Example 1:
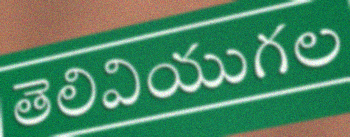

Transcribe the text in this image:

తెలివియుగల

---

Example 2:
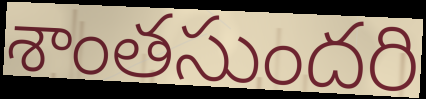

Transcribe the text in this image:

శాంతసుందరి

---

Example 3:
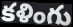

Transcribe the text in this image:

కళింగు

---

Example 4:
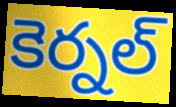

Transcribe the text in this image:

కెర్నల్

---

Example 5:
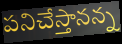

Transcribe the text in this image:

పనిచేస్తానన్న